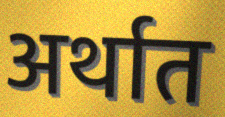
अर्थात